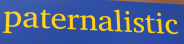
paternalistic